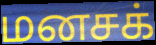
மனசக்